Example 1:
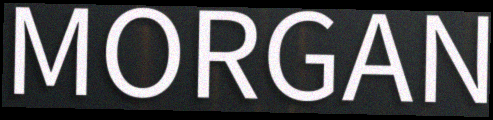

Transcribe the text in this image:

MORGAN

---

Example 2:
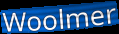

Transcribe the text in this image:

Woolmer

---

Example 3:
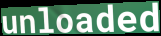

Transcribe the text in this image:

unloaded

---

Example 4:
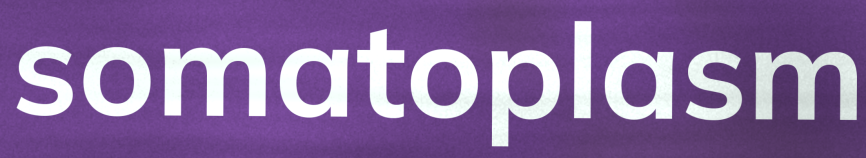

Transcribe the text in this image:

somatoplasm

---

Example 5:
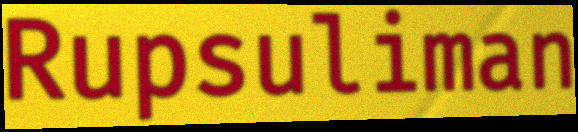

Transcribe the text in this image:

Rupsuliman